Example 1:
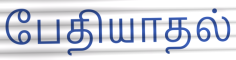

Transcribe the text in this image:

பேதியாதல்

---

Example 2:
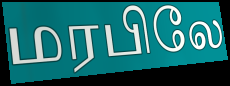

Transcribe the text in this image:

மரபிலே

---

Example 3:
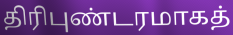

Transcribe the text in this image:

திரிபுண்டரமாகத்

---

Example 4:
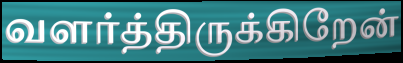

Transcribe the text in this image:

வளர்த்திருக்கிறேன்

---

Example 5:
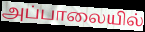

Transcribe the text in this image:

அப்பாலையில்